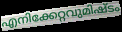
എനിക്കേറ്റവുമിഷ്ടം